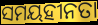
ସମୟହୀନତା